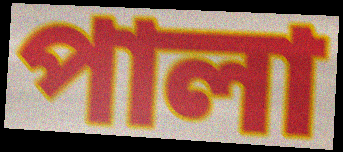
পালা